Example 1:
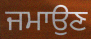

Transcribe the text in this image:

ਜਮਾਉਣ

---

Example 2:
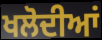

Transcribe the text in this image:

ਖਲੋਦੀਆਂ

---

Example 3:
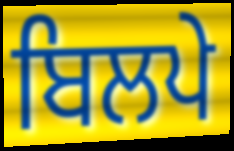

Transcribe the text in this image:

ਬਿਲਪੇ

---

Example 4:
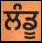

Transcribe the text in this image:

ਲੰਡੂ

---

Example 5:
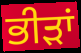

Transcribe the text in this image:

ਭੀੜਾਂ